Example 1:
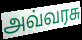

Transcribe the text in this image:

அவ்வரசு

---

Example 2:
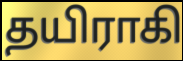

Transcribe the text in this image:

தயிராகி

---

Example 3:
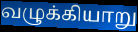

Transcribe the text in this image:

வழுக்கியாறு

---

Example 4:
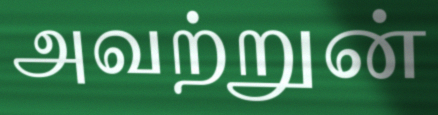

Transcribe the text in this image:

அவற்றுன்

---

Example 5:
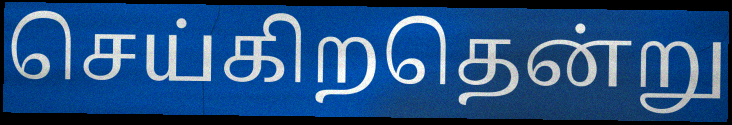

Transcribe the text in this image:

செய்கிறதென்று